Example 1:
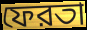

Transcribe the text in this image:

ফেরতা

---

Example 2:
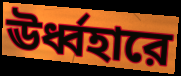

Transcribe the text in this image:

ঊর্ধ্বহারে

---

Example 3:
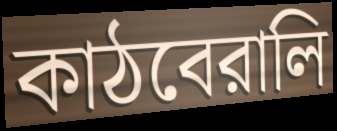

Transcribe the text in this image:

কাঠবেরালি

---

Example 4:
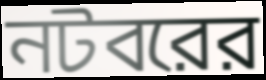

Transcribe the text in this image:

নটবরের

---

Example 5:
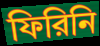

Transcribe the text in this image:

ফিরিনি